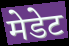
मेडेट